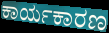
ಕಾರ್ಯಕಾರಣ